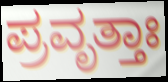
ಪ್ರವೃತ್ತಾಃ